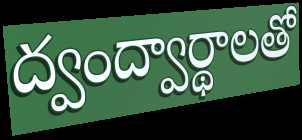
ద్వంద్వార్థాలతో